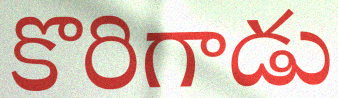
కొరిగాడు